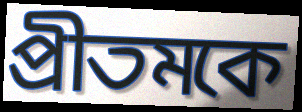
প্রীতমকে